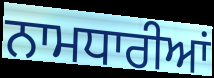
ਨਾਮਧਾਰੀਆਂ